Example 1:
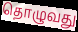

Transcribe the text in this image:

தொழுவது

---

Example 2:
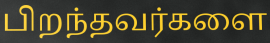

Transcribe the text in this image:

பிறந்தவர்களை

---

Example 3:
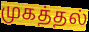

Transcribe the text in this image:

முகத்தல்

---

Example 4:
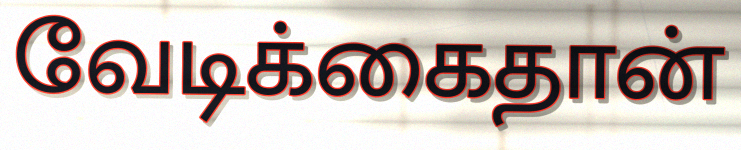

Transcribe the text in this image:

வேடிக்கைதான்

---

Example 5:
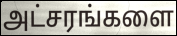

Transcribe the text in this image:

அட்சரங்களை